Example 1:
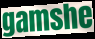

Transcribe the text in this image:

gamshe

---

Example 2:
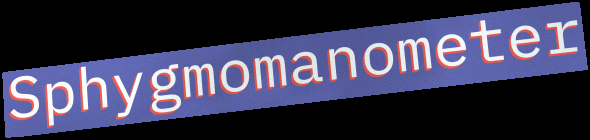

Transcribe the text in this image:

Sphygmomanometer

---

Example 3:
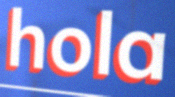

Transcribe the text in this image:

hola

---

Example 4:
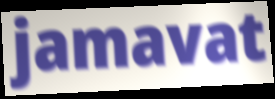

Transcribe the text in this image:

jamavat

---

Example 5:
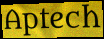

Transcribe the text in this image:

Aptech